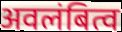
अवलंबित्व